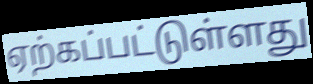
ஏற்கப்பட்டுள்ளது